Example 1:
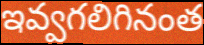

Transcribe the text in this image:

ఇవ్వగలిగినంత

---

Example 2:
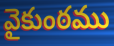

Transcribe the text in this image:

వైకుంఠము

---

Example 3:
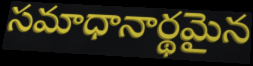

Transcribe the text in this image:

సమాధానార్థమైన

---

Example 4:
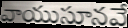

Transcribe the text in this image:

వాయుసూనవే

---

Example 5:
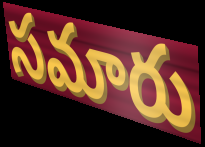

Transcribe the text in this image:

సమారు